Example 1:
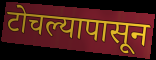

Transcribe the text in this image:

टोचल्यापासून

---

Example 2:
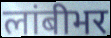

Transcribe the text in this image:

लांबीभर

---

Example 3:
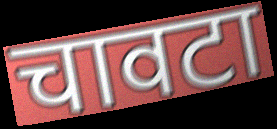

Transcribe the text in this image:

चावटा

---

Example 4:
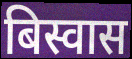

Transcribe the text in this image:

बिस्वास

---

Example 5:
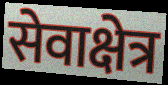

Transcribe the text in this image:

सेवाक्षेत्र